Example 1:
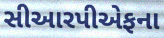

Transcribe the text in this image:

સીઆરપીએફના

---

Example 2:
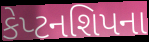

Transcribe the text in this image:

કેપ્ટનશિપના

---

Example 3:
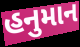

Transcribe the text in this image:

હનુમાન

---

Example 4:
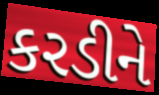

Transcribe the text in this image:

કરડીને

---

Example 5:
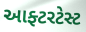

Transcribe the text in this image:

આફ્ટરટેસ્ટ